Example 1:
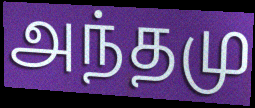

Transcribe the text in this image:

அந்தமு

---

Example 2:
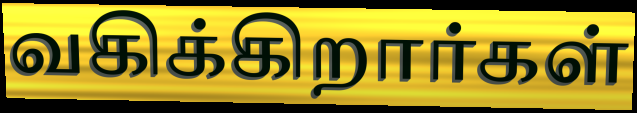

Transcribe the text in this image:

வகிக்கிறார்கள்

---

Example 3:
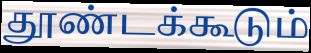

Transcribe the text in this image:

தூண்டக்கூடும்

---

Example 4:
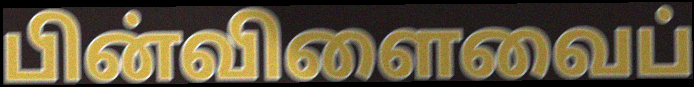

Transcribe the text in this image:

பின்விளைவைப்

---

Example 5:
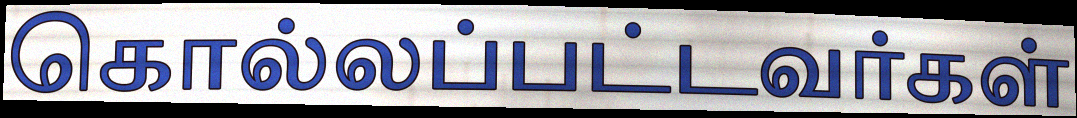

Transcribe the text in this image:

கொல்லப்பட்டவர்கள்